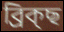
ব্ৰিক্‌ছ